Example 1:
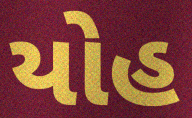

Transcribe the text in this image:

યોહ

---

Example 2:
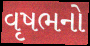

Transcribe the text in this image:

વૃષભનો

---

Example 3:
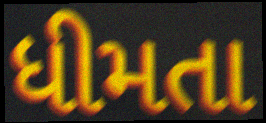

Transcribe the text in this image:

ધીમતા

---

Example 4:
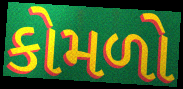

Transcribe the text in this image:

કોમળો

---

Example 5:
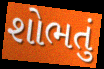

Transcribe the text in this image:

શોભતું